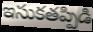
ఇసుకతప్పిడి